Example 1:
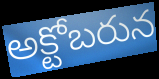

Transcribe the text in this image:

అక్టోబరున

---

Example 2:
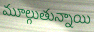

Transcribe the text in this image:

మూల్గుతున్నాయి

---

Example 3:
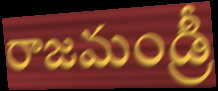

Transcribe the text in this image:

రాజమండ్రీ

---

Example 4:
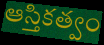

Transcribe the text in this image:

ఆస్తికత్వం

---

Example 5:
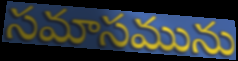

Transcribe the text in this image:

సమాసమును